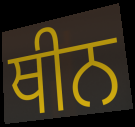
ਥੀਨ